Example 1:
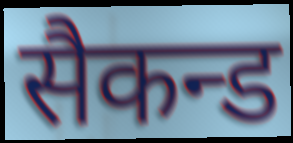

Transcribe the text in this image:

सैकन्ड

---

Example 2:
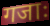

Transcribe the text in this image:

गजाः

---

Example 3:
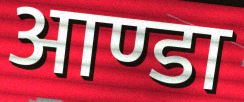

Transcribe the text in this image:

आण्डा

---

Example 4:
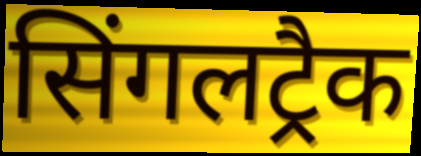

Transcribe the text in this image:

सिंगलट्रैक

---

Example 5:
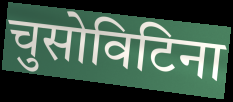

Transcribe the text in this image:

चुसोविटिना